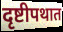
दृष्टीपथात